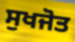
ਸੁਖਜੋਤ